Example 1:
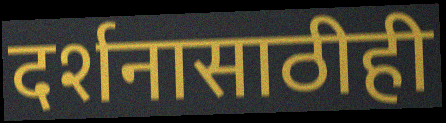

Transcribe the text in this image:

दर्शनासाठीही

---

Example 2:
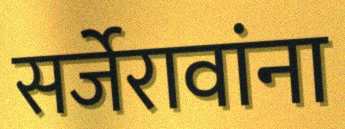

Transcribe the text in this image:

सर्जेरावांना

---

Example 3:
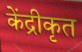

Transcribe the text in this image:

केंद्रीकृत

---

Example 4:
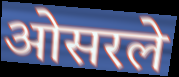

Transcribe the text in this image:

ओसरले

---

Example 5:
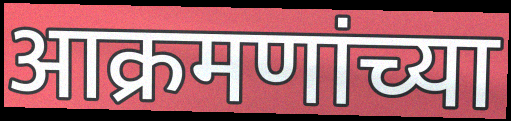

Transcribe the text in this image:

आक्रमणांच्या